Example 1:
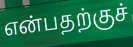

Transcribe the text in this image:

என்பதற்குச்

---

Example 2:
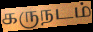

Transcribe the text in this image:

கருநடம்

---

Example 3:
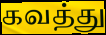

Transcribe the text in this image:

கவத்து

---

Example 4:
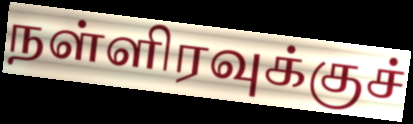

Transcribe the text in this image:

நள்ளிரவுக்குச்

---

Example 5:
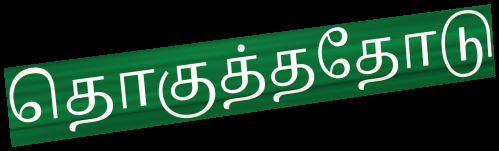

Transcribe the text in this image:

தொகுத்ததோடு